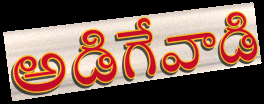
అడిగేవాడి